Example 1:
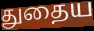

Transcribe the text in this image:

துதைய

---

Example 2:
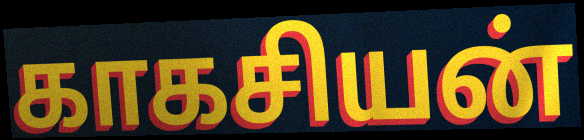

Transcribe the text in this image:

காகசியன்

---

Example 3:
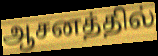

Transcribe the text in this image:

ஆசனத்தில்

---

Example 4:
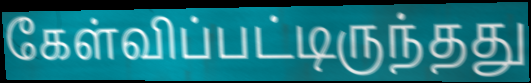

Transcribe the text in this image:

கேள்விப்பட்டிருந்தது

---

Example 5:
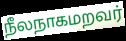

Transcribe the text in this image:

நீலநாகமறவர்